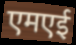
एमएई